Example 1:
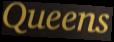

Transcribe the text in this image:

Queens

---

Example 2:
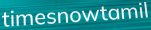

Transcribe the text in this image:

timesnowtamil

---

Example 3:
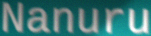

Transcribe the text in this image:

Nanuru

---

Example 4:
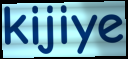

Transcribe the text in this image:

kijiye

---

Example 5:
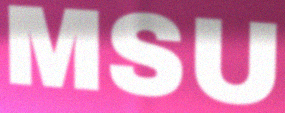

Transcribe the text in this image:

MSU